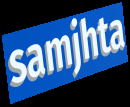
samjhta